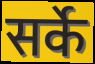
सर्के